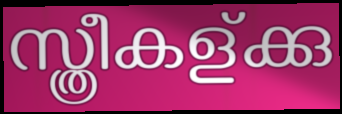
സ്ത്രീകള്ക്കു